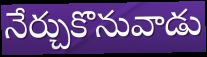
నేర్చుకొనువాడు